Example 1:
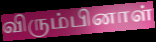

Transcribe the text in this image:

விரும்பினாள்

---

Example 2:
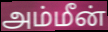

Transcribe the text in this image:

அம்மீன்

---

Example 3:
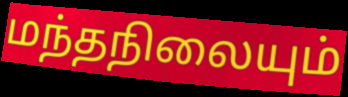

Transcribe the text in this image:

மந்தநிலையும்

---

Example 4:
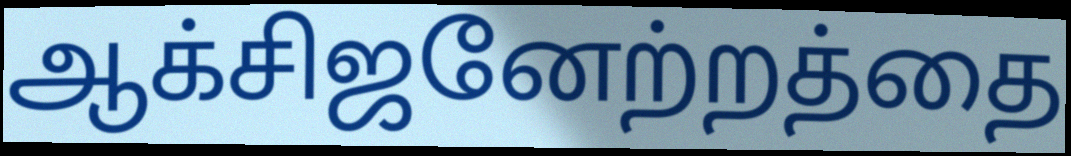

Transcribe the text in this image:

ஆக்சிஜனேற்றத்தை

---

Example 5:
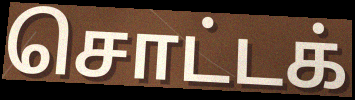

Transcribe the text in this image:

சொட்டக்